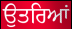
ਉਤਰਿਆਂ